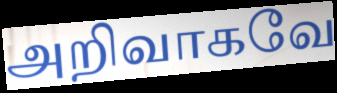
அறிவாகவே